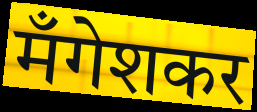
मँगेशकर